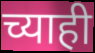
च्याही